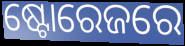
ଷ୍ଟୋରେଜରେ